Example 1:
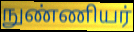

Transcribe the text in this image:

நுண்ணியர்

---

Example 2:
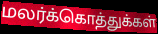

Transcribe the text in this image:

மலர்க்கொத்துக்கள்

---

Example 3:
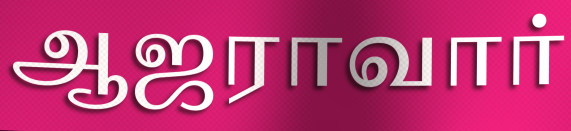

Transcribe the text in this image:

ஆஜராவார்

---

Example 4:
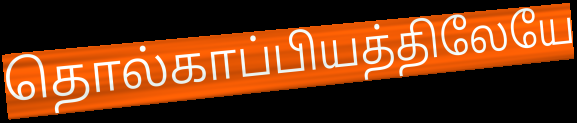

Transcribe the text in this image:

தொல்காப்பியத்திலேயே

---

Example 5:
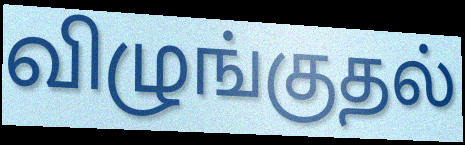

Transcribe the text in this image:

விழுங்குதல்